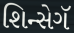
શિન્સેગૅ